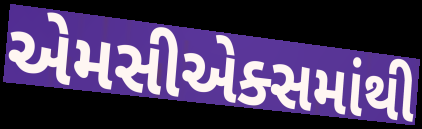
એમસીએક્સમાંથી